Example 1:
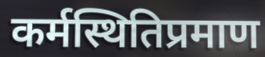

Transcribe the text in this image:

कर्मस्थितिप्रमाण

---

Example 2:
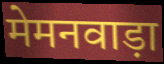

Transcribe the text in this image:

मेमनवाड़ा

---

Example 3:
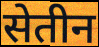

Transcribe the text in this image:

सेतीन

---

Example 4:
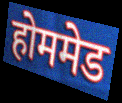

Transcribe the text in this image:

होममेड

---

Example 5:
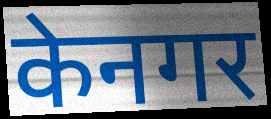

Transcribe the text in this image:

केनगर